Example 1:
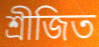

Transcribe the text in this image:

শ্রীজিত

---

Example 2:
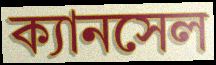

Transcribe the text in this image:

ক্যানসেল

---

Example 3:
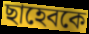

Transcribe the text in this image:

ছাহেবকে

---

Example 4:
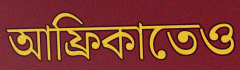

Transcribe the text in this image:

আফ্রিকাতেও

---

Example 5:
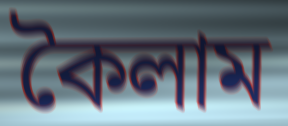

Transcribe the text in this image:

কৈলাম